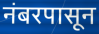
नंबरपासून